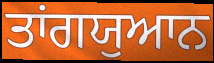
ਤਾਂਗਯੁਆਨ